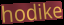
hodike